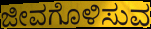
ಜೀವಗೊಳಿಸುವ